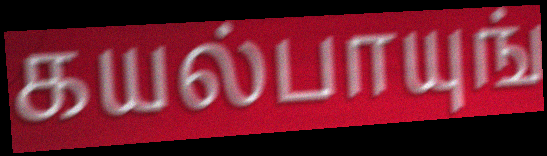
கயல்பாயுங்